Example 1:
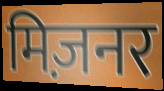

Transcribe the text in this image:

मिज़नर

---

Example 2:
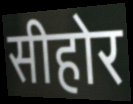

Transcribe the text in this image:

सीहोर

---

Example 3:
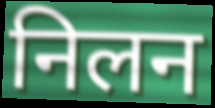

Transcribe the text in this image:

निलन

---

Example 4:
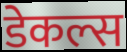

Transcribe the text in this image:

डेकल्स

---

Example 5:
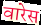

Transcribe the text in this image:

वारेस